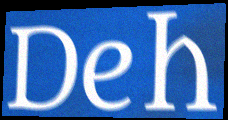
Deh